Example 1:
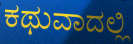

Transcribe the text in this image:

ಕಥುವಾದಲ್ಲಿ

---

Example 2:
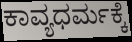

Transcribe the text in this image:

ಕಾವ್ಯಧರ್ಮಕ್ಕೆ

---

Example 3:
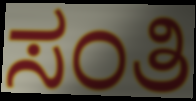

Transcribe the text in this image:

ಸಂತಿ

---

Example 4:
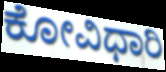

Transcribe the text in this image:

ಕೋವಿಧಾರಿ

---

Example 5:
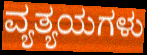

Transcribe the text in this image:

ವ್ಯತ್ಯಯಗಳು